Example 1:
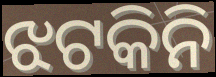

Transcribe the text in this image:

ଝଟକିନି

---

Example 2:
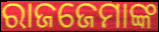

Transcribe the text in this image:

ରାଜଜେମାଙ୍କ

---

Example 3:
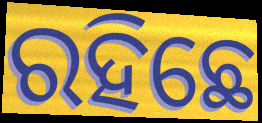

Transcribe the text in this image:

ରହିଛେ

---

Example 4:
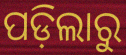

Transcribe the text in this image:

ପଡ଼ିଲାରୁ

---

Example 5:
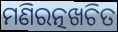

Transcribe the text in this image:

ମଣିରତ୍ନଖଚିତ